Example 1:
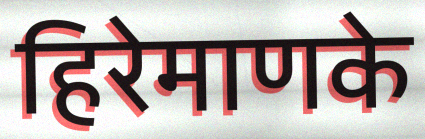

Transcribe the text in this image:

हिरेमाणके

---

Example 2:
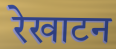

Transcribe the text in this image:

रेखाटन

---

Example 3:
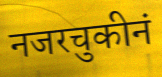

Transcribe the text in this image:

नजरचुकीनं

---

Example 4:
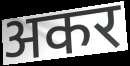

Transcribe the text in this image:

अकर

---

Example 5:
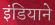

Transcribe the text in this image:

इंडियाने